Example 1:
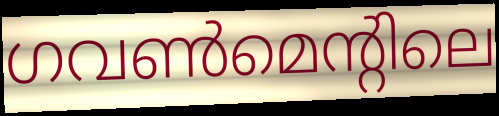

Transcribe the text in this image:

ഗവൺമെന്റിലെ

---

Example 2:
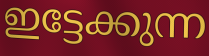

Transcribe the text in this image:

ഇട്ടേക്കുന്ന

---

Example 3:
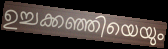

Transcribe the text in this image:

ഉച്ചക്കഞ്ഞിയെയും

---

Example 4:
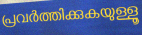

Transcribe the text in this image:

പ്രവർത്തിക്കുകയുള്ളൂ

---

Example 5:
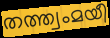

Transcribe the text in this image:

തത്ത്വംമയീ